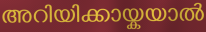
അറിയിക്കായ്കയാൽ